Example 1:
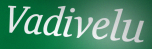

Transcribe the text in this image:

Vadivelu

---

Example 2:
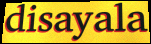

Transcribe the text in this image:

disayala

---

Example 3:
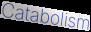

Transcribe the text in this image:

Catabolism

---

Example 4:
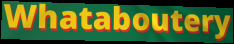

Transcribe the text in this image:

Whataboutery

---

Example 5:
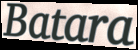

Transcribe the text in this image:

Batara